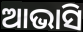
ଆଭାସି